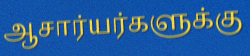
ஆசார்யர்களுக்கு